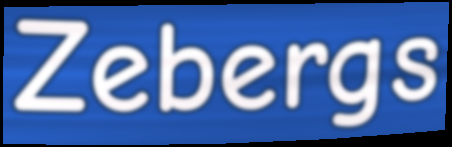
Zebergs